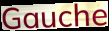
Gauche